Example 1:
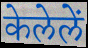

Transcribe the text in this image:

केलेलें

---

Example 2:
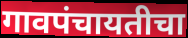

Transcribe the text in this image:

गावपंचायतीचा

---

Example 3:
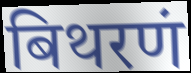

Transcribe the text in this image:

बिथरणं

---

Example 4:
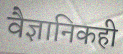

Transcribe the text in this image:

वैज्ञानिकही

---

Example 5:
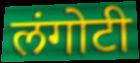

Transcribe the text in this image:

लंगोटी